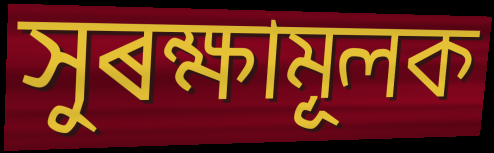
সুৰক্ষামূলক